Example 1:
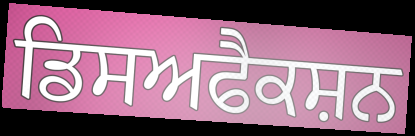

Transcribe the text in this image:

ਡਿਸਅਫੈਕਸ਼ਨ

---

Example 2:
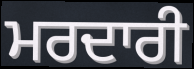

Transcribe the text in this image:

ਮਰਦਾਰੀ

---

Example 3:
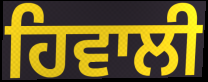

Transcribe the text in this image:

ਹਿਵਾਲੀ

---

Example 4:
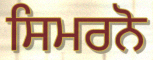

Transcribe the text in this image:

ਸਿਮਰਨੋ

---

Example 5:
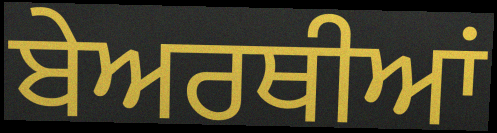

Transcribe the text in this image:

ਬੇਅਰਥੀਆਂ